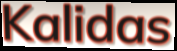
Kalidas